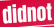
didnot